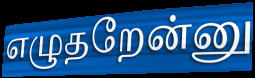
எழுதறேன்னு